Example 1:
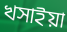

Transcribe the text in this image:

খসাইয়া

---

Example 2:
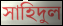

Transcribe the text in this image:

সাহিদুল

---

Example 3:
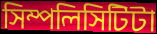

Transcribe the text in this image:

সিম্পলিসিটিটা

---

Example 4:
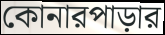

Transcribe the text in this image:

কোনারপাড়ার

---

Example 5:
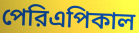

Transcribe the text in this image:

পেরিএপিকাল